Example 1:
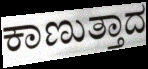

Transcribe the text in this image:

ಕಾಣುತ್ತಾದ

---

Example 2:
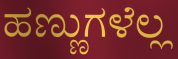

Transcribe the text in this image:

ಹಣ್ಣುಗಳೆಲ್ಲ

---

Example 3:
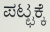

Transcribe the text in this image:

ಪಟ್ಟಕ್ಕೆ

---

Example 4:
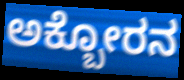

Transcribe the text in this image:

ಅಕ್ಬೋರನ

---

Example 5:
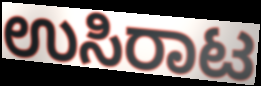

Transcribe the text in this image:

ಉಸಿರಾಟ